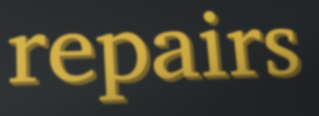
repairs